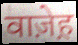
वाज़ेह़